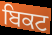
ਬਿਕਟ